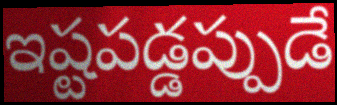
ఇష్టపడ్డప్పుడే